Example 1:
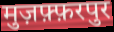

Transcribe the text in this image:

मुज़फ़्फ़रपुर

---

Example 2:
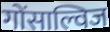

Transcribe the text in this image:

गोंसाल्विज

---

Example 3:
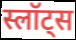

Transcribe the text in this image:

स्लॉट्स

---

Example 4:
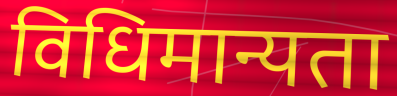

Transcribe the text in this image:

विधिमान्यता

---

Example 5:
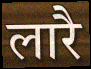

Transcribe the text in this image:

लारै